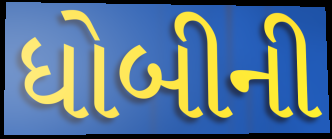
ધોબીની